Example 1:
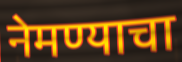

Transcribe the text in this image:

नेमण्याचा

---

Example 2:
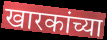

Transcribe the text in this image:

खारकांच्या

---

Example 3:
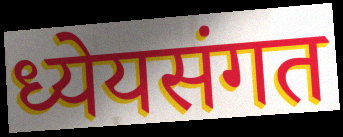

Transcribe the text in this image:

ध्येयसंगत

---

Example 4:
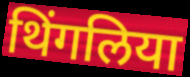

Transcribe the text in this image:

थिंगलिया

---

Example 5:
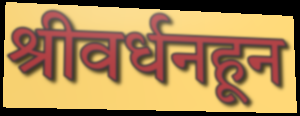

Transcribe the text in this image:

श्रीवर्धनहून